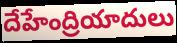
దేహేంద్రియాదులు